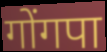
गोंगपा